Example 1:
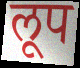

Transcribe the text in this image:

लूप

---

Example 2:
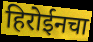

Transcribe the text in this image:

हिरोईनचा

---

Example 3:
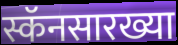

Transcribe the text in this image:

स्कॅनसारख्या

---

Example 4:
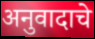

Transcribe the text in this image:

अनुवादाचे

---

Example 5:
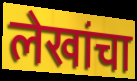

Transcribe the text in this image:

लेखांचा